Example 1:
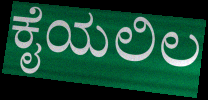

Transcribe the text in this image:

ಕೈಯಲಿಲ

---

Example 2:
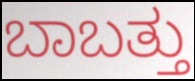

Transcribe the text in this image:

ಬಾಬತ್ತು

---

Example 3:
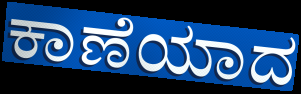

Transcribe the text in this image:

ಕಾಣೆಯಾದ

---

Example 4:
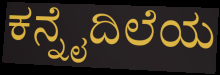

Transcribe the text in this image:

ಕನ್ನೈದಿಲೆಯ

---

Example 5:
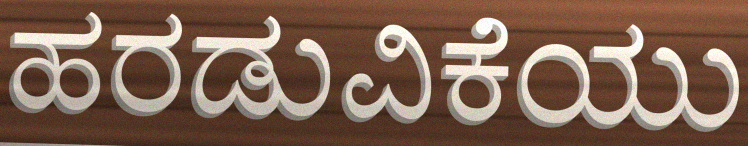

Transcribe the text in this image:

ಹರಡುವಿಕೆಯು